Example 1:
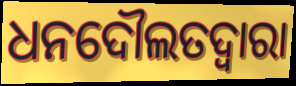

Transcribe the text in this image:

ଧନଦୌଲତଦ୍ଵାରା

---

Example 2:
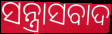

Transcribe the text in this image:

ସନ୍ତ୍ରାସବାଦ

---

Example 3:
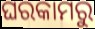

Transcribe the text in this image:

ଘରକାମରୁ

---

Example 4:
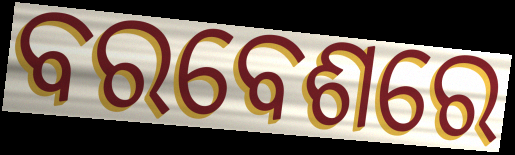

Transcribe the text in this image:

ବରବେଶରେ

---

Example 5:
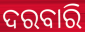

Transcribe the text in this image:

ଦରବାରି